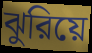
ঝুরিয়ে